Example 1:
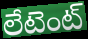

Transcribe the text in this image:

లేటెంట్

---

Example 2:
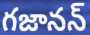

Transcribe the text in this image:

గజానన్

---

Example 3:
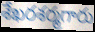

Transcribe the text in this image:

శేఖరశర్మగారు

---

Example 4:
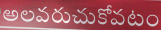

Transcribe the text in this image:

అలవరుచుకోవటం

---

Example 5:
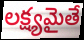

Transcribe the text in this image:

లక్ష్యమైతే